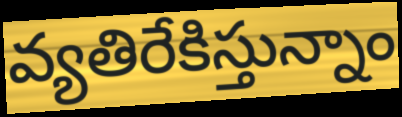
వ్యతిరేకిస్తున్నాం